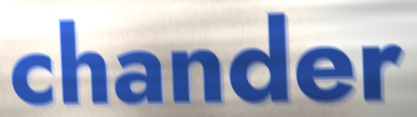
chander